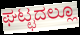
ಘಟ್ಟದಲ್ಲೂ